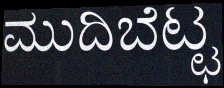
ಮುದಿಬೆಟ್ಟ